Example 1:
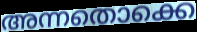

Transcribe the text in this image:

അന്നതൊക്കെ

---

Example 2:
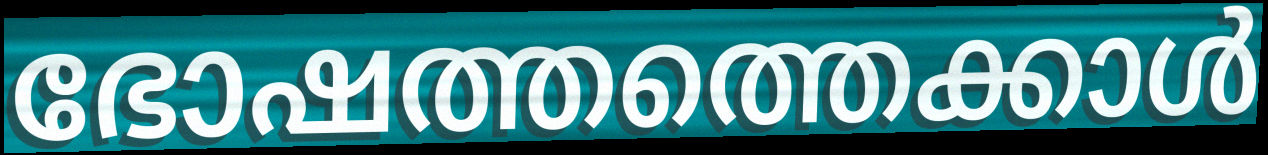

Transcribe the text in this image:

ഭോഷത്തത്തെക്കാൾ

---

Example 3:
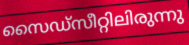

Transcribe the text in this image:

സൈഡ്സീറ്റിലിരുന്നു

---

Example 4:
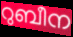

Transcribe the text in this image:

റുബീന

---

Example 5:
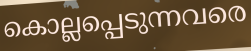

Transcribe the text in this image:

കൊല്ലപ്പെടുന്നവരെ